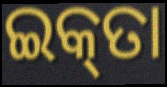
ଇକ୍‌ତା